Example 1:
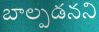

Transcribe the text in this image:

బాల్పడనని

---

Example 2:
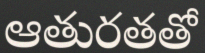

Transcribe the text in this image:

ఆతురతతో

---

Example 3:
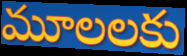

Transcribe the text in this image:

మూలలకు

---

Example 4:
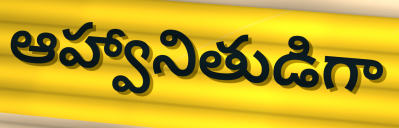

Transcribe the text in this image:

ఆహ్వానితుడిగా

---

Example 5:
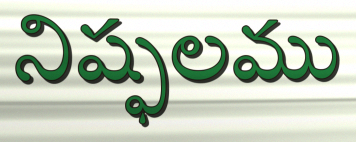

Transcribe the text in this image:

నిష్ఫలము